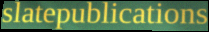
slatepublications